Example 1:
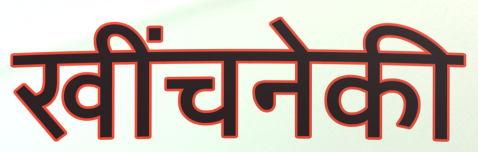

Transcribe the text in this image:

खींचनेकी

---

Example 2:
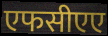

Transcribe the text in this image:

एफसीएए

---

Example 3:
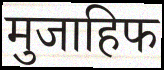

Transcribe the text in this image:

मुजाहिफ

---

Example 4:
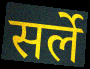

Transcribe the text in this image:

सर्ले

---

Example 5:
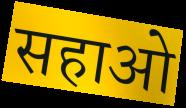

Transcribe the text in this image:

सहाओ